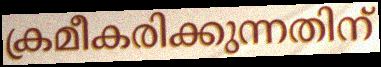
ക്രമീകരിക്കുന്നതിന്